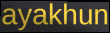
ayakhun